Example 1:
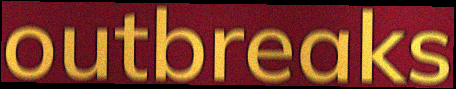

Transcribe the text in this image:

outbreaks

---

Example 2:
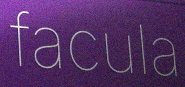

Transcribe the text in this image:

facula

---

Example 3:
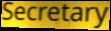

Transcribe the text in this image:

Secretary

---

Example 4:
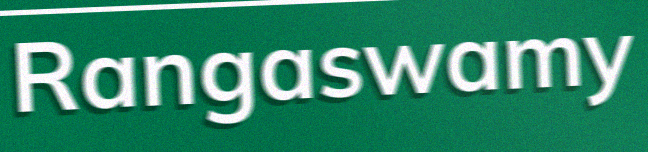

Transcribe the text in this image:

Rangaswamy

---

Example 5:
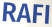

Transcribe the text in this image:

RAFI